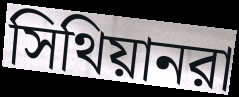
সিথিয়ানরা